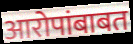
आरोपांबाबत